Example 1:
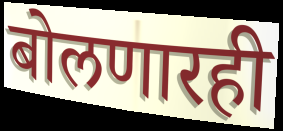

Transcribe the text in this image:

बोलणारही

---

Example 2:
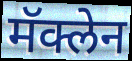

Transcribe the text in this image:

मॅक्लेन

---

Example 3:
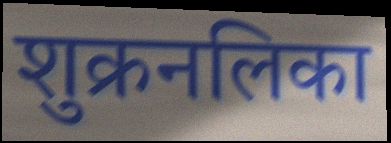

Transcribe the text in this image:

शुक्रनलिका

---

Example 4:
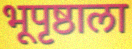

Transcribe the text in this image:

भूपृष्ठाला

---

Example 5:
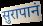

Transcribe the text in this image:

सुरापानं